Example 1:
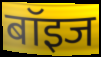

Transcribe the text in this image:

बॉइज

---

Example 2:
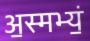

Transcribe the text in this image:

अ॒स्मभ्यं॒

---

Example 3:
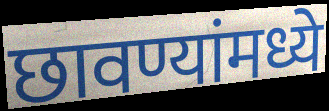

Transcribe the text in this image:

छावण्यांमध्ये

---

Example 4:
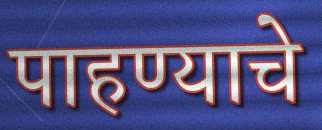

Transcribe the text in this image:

पाहण्याचे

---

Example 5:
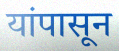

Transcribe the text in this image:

यांपासून